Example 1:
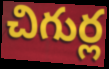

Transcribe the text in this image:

చిగుర్ల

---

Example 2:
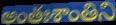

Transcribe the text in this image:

అంతఃశాంతిని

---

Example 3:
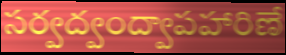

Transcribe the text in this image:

సర్వద్వంద్వాపహారిణే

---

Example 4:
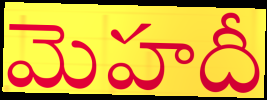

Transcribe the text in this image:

మెహదీ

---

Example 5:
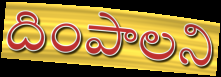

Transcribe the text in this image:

దింపాలని